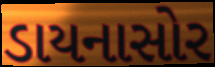
ડાયનાસોર